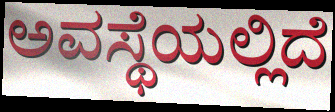
ಅವಸ್ಥೆಯಲ್ಲಿದೆ